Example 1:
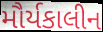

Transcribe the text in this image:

મૌર્યકાલીન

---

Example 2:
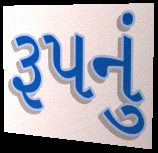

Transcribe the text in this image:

રૂપનું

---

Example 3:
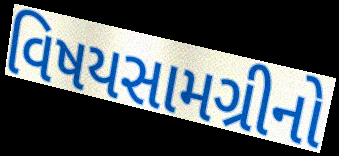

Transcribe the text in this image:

વિષયસામગ્રીનો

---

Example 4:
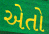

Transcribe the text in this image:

એતો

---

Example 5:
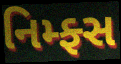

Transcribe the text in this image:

નિમ્ફ્સ